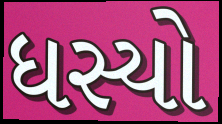
ધસ્યો